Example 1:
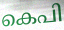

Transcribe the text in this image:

കെപി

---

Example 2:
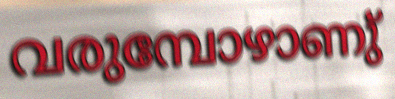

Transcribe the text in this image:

വരുമ്പോഴാണു്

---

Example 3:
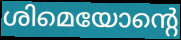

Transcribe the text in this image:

ശിമെയോന്റെ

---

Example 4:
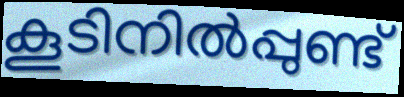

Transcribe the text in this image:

കൂടിനിൽപ്പുണ്ട്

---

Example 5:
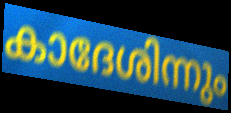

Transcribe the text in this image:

കാദേശിന്നും